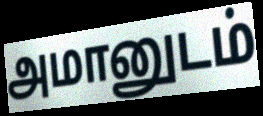
அமானுடம்